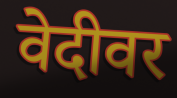
वेदीवर